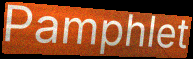
Pamphlet